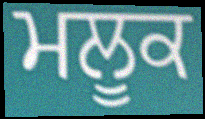
ਮਲੂਕ